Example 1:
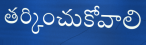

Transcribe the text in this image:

తర్కించుకోవాలి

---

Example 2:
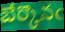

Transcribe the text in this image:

బేర్కొనఁ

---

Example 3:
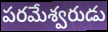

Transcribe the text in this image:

పరమేశ్వరుడు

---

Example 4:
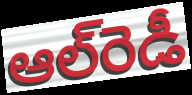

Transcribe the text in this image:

ఆల్‌రెడీ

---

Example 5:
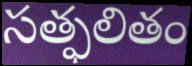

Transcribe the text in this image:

సత్ఫలితం